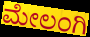
ಮೇಲಂಗಿ